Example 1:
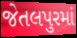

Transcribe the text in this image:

જેતલપુરમાં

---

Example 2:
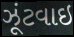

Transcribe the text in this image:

ઝૂંટવાઇ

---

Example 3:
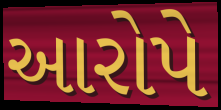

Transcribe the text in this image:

આરોપે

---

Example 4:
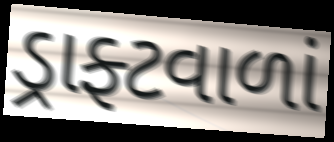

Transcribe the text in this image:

ડ્રાફ્ટવાળાં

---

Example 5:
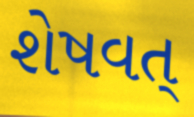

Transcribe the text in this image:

શેષવત્